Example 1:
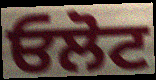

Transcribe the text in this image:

ਓਲੋਟ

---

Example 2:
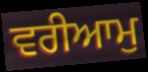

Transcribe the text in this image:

ਵਰੀਆਮੁ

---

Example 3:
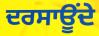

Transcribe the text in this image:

ਦਰਸਾਊਂਦੇ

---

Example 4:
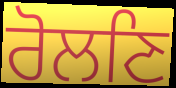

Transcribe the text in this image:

ਰੋਲਣਿ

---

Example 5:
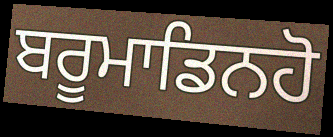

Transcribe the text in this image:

ਬਰੂਮਾਡਿਨਹੋ